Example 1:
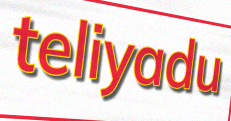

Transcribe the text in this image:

teliyadu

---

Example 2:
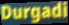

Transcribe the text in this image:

Durgadi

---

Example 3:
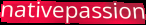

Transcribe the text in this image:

nativepassion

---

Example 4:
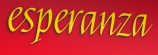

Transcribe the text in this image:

esperanza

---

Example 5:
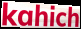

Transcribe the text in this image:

kahich